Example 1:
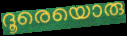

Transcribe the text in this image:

ദൂരെയൊരു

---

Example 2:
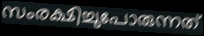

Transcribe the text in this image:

സംരക്ഷിച്ചുപോരുന്നത്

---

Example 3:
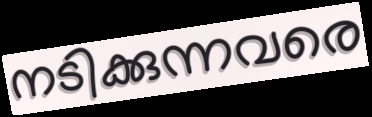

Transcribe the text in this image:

നടിക്കുന്നവരെ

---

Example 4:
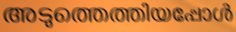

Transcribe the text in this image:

അടുത്തെത്തിയപ്പോൾ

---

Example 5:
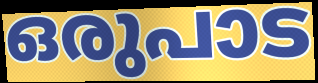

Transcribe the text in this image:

ഒരുപാട